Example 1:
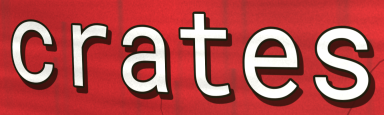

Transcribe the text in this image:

crates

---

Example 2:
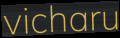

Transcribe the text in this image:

vicharu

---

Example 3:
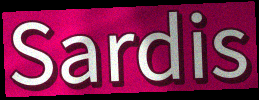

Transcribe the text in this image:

Sardis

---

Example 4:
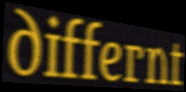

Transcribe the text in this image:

differnt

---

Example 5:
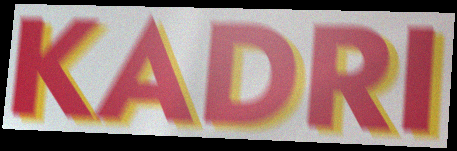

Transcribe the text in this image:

KADRI